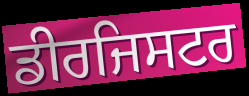
ਡੀਰਜਿਸਟਰ